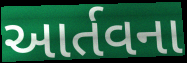
આર્તવના